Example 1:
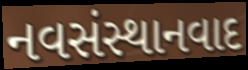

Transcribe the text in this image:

નવસંસ્થાનવાદ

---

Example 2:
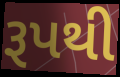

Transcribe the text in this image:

રૂપથી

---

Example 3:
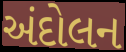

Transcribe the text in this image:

અંદોલન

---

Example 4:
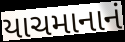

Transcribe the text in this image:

યાચમાનાનં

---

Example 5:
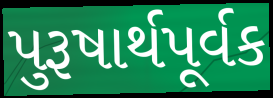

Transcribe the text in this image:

પુરૂષાર્થપૂર્વક